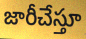
జారీచేస్తూ